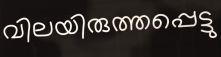
വിലയിരുത്തപ്പെട്ടു